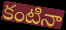
కంటినా